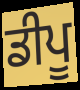
ਡੀਪੂ